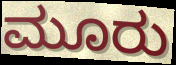
ಮೂರು